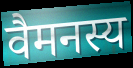
वैमनस्य